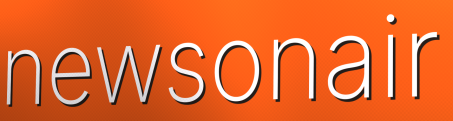
newsonair